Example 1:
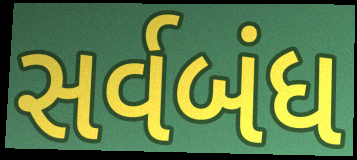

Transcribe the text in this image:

સર્વબંધ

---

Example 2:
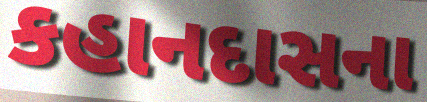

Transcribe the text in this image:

કહાનદાસના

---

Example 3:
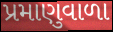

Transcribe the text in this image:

પ્રમાણુવાળા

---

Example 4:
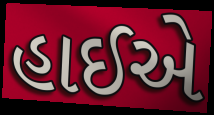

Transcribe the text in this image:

હાઈએ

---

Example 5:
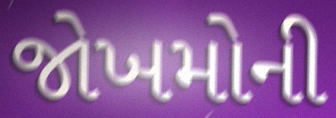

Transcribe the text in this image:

જોખમોની